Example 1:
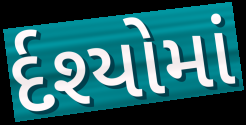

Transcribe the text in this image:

ર્દશ્યોમાં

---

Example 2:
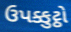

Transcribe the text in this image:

ઉપક્કુટ્ઠો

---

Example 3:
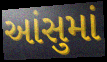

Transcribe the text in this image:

આંસુમાં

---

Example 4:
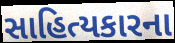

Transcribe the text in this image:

સાહિત્યકારના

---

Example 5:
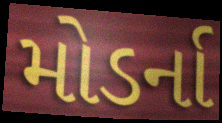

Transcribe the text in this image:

મોડર્ના